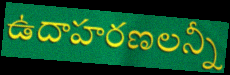
ఉదాహరణలన్నీ